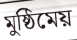
মুষ্ঠিমেয়